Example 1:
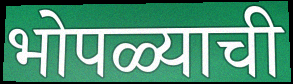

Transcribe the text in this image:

भोपळ्याची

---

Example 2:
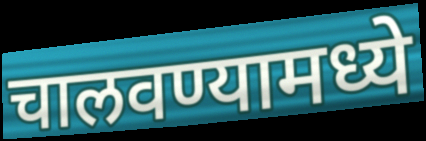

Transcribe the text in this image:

चालवण्यामध्ये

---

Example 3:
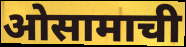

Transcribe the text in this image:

ओसामाची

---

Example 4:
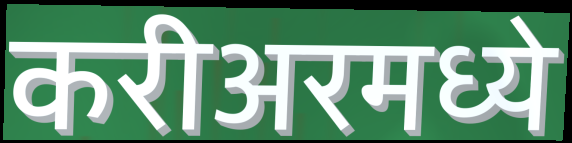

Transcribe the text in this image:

करीअरमध्ये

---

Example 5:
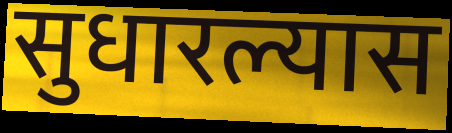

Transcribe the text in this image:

सुधारल्यास